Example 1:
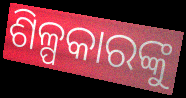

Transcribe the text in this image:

ଶିଳ୍ପକାରଙ୍କୁ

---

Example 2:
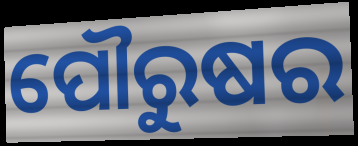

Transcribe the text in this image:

ପୌରୁଷର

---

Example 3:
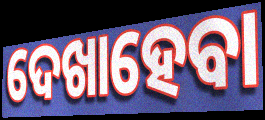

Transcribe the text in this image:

ଦେଖାହେବା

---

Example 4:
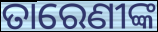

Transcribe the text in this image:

ତାରେଣୀଙ୍କ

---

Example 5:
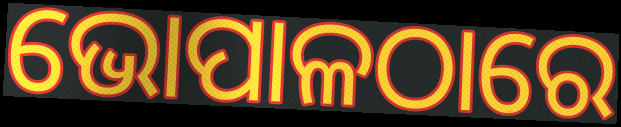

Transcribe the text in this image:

ଭୋପାଳଠାରେ